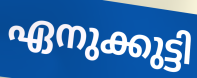
ഏനുക്കുട്ടി